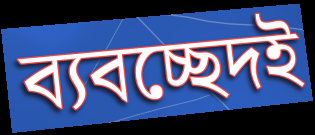
ব্যবচ্ছেদই